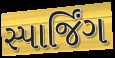
સ્પાર્જિંગ